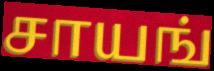
சாயங்